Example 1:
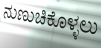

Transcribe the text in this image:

ನುಣುಚಿಕೊಳ್ಳಲು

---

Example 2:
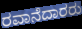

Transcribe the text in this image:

ರವಾನೆದಾರರು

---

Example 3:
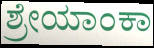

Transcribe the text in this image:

ಶ್ರೇಯಾಂಕಾ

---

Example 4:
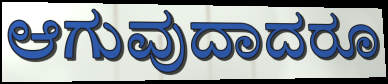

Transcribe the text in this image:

ಆಗುವುದಾದರೂ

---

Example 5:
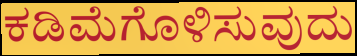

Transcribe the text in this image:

ಕಡಿಮೆಗೊಳಿಸುವುದು